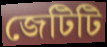
জেটিটি